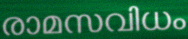
രാമസവിധം